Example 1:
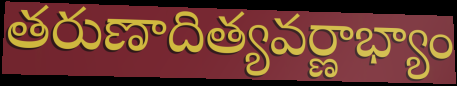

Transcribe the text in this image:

తరుణాదిత్యవర్ణాభ్యాం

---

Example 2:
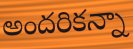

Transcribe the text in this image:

అందరికన్నా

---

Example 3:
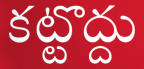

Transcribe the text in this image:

కట్టొద్దు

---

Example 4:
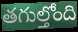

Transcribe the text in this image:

తగుల్తోంది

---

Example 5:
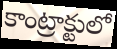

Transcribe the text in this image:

కాంట్రాక్టులో